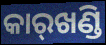
କାର୍‌ଖଣ୍ଡି